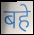
बहे